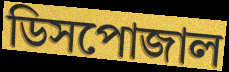
ডিসপোজাল